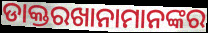
ଡାକ୍ତରଖାନାମାନଙ୍କର